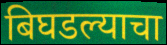
बिघडल्याचा